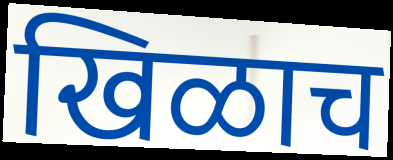
खिळाच